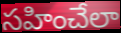
సహించేలా